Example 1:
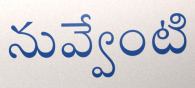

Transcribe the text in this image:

నువ్వేంటి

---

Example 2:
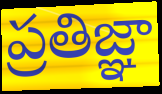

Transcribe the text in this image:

ప్రతిజ్ఞా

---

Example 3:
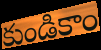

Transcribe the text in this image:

కుండికాం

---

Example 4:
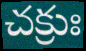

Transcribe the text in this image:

చక్రుః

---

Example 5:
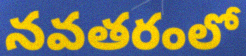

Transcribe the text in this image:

నవతరంలో